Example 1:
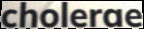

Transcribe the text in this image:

cholerae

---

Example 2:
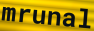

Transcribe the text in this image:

mrunal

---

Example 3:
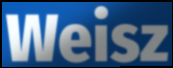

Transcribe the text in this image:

Weisz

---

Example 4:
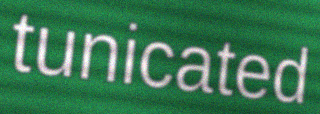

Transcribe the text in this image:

tunicated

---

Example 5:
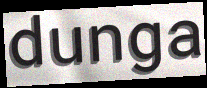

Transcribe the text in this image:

dunga